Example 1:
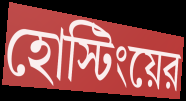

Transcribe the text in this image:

হোস্টিংয়ের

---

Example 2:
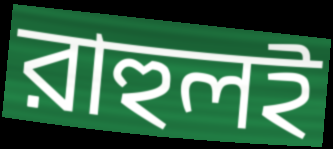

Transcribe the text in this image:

রাহুলই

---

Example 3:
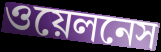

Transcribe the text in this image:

ওয়েলনেস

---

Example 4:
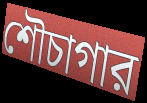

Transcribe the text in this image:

শৌচাগার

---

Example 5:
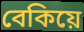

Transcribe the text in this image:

বেকিয়ে